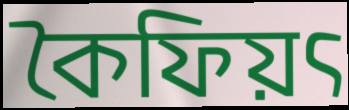
কৈফিয়ৎ